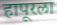
हापूरला